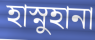
হাস্নুহানা